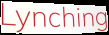
Lynching